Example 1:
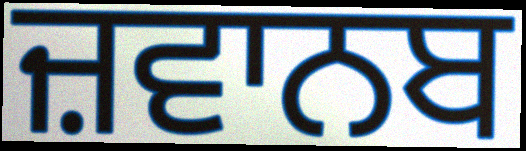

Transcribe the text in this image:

ਜ਼ਵਾਨਬ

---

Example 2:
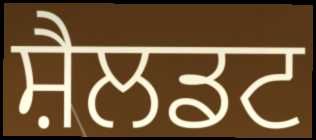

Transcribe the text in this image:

ਸ਼ੈਲਡਟ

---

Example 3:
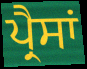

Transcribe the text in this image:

ਪ੍ਰੈਸਾਂ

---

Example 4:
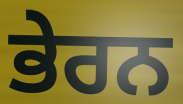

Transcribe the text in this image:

ਭੇਰਨ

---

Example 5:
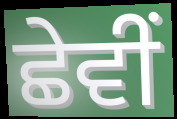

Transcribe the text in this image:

ਛੇਵੀਂ